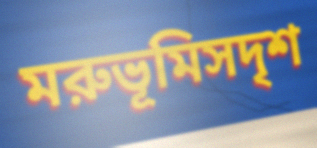
মরুভূমিসদৃশ